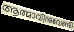
ആത്മാവിനുവേണ്ടി